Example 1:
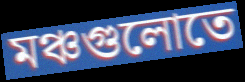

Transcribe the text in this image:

মঞ্চগুলোতে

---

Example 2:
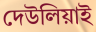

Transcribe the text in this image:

দেউলিয়াই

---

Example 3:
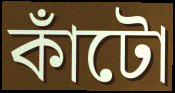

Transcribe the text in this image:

কাঁটো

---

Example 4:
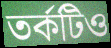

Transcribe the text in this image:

তর্কটিও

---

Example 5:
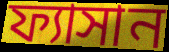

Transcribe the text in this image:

ফ্যাসান